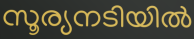
സൂര്യനടിയിൽ